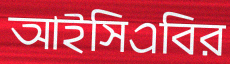
আইসিএবির